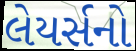
લેયર્સનો